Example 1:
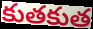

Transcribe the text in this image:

కుతకుత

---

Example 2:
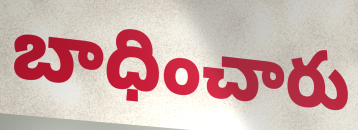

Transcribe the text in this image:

బాధించారు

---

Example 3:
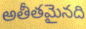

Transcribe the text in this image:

అతీతమైనది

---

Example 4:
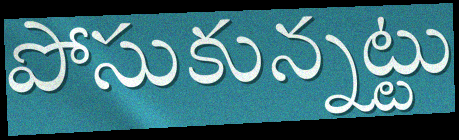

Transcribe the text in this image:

పోసుకున్నట్టు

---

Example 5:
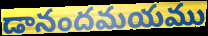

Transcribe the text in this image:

డానందమయము